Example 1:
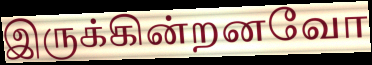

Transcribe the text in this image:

இருக்கின்றனவோ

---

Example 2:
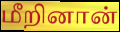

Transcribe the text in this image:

மீறினான்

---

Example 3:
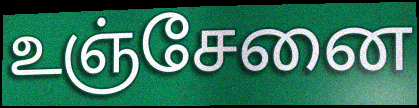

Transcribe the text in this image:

உஞ்சேனை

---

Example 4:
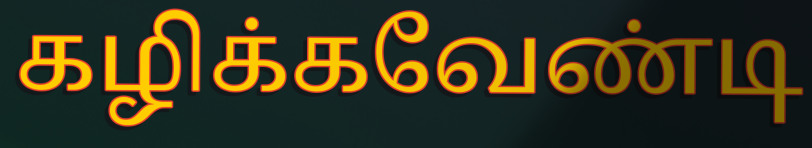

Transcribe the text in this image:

கழிக்கவேண்டி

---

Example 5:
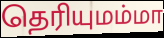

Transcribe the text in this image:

தெரியுமம்மா